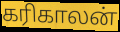
கரிகாலன்